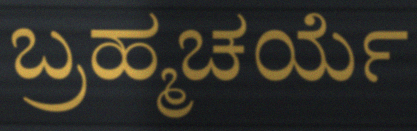
ಬ್ರಹ್ಮಚರ್ಯೆ